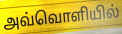
அவ்வொளியில்